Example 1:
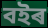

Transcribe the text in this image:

বইৰ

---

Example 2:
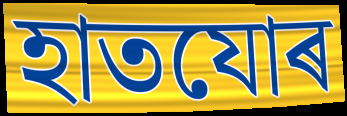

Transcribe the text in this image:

হাতযোৰ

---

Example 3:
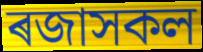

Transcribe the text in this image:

ৰজাসকল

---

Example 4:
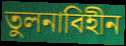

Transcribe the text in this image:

তুলনাবিহীন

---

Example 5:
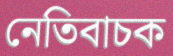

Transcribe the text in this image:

নেতিবাচক